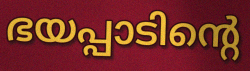
ഭയപ്പാടിന്റെ